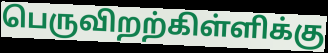
பெருவிறற்கிள்ளிக்கு